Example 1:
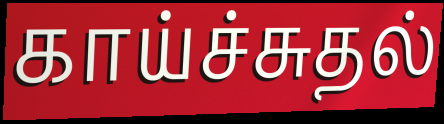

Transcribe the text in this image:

காய்ச்சுதல்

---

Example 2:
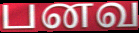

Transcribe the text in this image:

பனவ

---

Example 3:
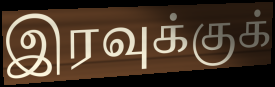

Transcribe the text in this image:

இரவுக்குக்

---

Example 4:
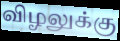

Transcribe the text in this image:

விழலுக்கு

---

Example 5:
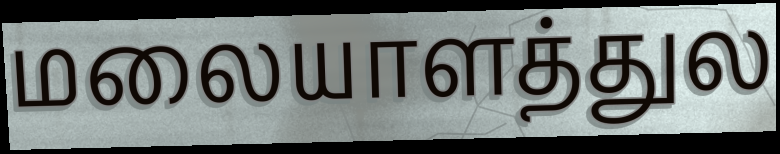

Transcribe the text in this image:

மலையாளத்துல